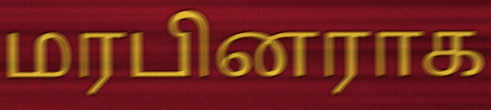
மரபினராக